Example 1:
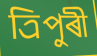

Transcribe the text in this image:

ত্ৰিপুৰী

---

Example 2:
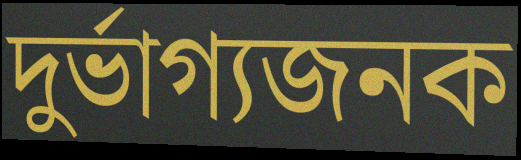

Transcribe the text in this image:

দুৰ্ভাগ্যজনক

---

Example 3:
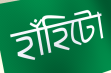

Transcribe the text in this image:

হাঁহিটো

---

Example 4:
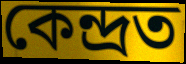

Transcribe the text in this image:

কেন্দ্ৰত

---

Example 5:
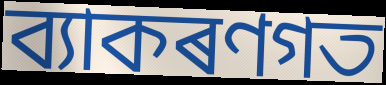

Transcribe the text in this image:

ব্যাকৰণগত